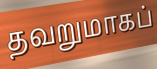
தவறுமாகப்